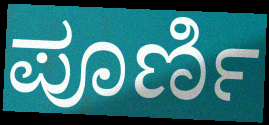
ಪೂರ್ಣಿ